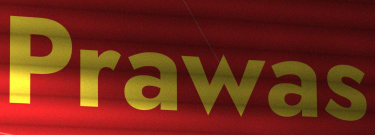
Prawas